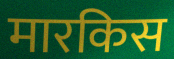
मारकिस